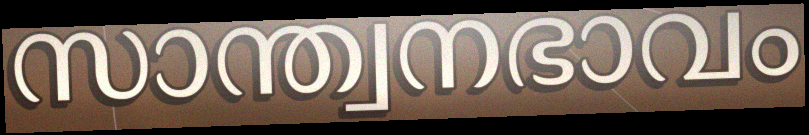
സാന്ത്വനഭാവം